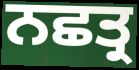
ਨਛਤ੍ਰ